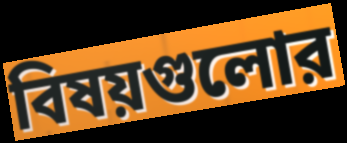
বিষয়গুলোর